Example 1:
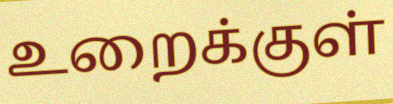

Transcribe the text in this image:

உறைக்குள்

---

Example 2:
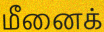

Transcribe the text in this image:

மீனைக்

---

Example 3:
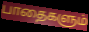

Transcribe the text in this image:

பாதைகளும்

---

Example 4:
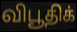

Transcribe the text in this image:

விபூதிக்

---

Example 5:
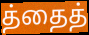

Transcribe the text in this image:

த்தைத்